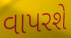
વાપરશે